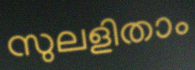
സുലളിതാം